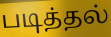
படித்தல்